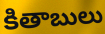
కితాబులు